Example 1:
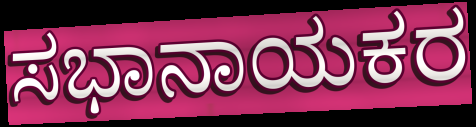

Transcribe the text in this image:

ಸಭಾನಾಯಕರ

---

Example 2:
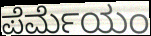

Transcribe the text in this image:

ಪೆರ್ಮೆಯಂ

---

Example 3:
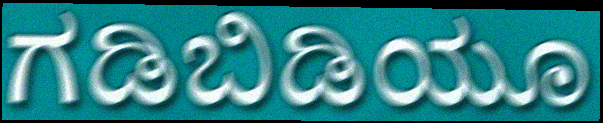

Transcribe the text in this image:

ಗಡಿಬಿಡಿಯೂ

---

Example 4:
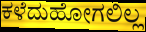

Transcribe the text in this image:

ಕಳೆದುಹೋಗಲಿಲ್ಲ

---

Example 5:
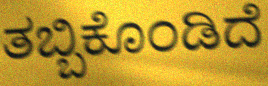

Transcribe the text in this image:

ತಬ್ಬಿಕೊಂಡಿದೆ